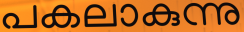
പകലാകുന്നു